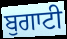
ਬੁਗਾਟੀ